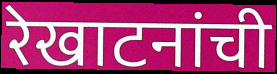
रेखाटनांची